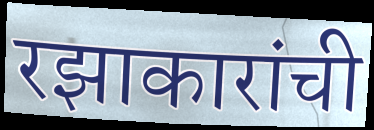
रझाकारांची